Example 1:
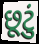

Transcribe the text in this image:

છૂટું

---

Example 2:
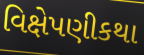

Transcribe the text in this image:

વિક્ષેપણીકથા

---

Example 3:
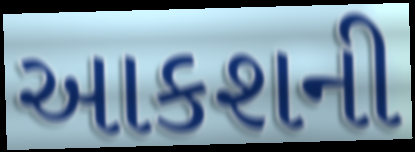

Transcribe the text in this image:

આકશની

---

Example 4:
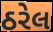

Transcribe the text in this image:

ઠરેલ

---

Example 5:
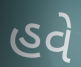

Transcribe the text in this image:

હવે